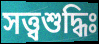
সত্ত্বশুদ্ধিঃ